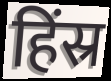
हिंस्र